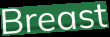
Breast